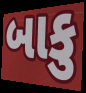
બાકુ